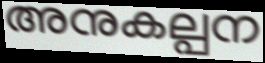
അനുകല്പന